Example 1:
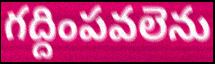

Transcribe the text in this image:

గద్దింపవలెను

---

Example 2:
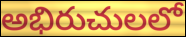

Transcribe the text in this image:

అభిరుచులలో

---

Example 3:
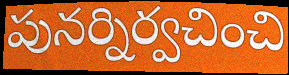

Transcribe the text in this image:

పునర్నిర్వచించి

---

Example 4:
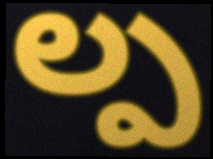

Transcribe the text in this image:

ల్ప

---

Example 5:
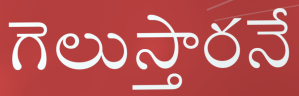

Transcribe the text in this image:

గెలుస్తారనే